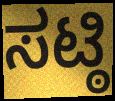
ಸಟ್ಠಿ